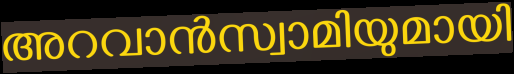
അറവാൻസ്വാമിയുമായി